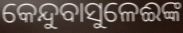
କେନ୍ଦୁବାସୁଳେଈଙ୍କ